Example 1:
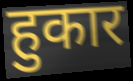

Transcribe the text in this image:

हुकार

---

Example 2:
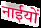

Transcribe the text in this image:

नाईयों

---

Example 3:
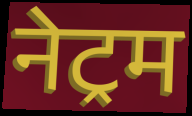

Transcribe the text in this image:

नेट्रम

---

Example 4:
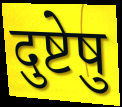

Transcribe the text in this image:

दुष्टेषु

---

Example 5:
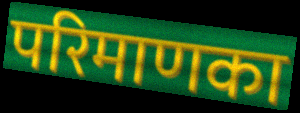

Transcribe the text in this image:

परिमाणका